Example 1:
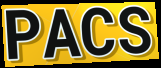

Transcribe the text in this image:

PACS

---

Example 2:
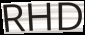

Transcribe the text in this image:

RHD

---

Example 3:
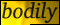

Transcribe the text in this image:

bodily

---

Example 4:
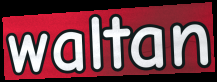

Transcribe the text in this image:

waltan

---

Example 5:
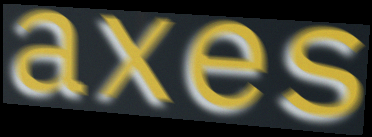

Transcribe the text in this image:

axes